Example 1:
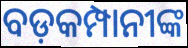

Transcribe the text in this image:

ବଡ଼କମ୍ପାନୀଙ୍କ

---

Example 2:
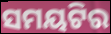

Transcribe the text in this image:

ସମୟଟିର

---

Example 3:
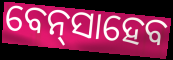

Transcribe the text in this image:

ବେନ୍‌ସାହେବ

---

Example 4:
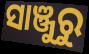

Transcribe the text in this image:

ସାଞ୍ଜୁରୁ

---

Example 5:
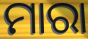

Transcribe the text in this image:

ମାରା